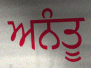
ਅਨੰਤੂ